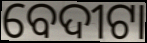
ବେଦୀଟା